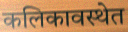
कलिकावस्थेत